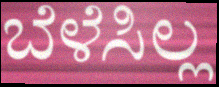
ಬೆಳೆಸಿಲ್ಲ